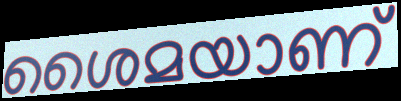
ശൈമയാണ്